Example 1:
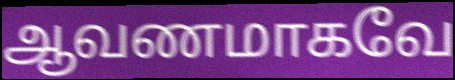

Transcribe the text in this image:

ஆவணமாகவே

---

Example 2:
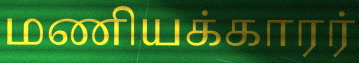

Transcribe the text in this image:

மணியக்காரர்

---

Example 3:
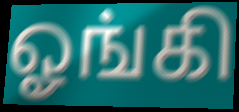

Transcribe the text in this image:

ஓங்கி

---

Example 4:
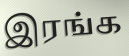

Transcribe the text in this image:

இரங்க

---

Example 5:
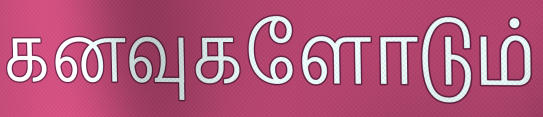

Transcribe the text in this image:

கனவுகளோடும்